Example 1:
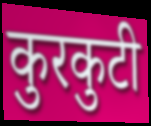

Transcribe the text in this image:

कुरकुटी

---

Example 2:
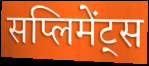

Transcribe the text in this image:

सप्लिमेंट्स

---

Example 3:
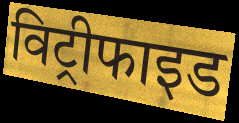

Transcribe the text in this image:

विट्रीफाइड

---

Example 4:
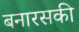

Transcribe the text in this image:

बनारसकी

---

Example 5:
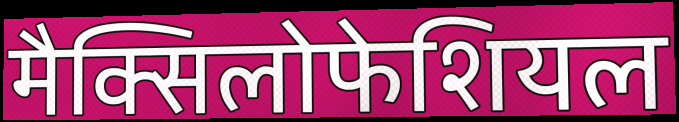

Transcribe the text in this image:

मैक्सिलोफेशियल